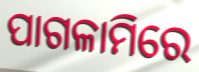
ପାଗଳାମିରେ